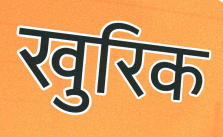
खुरिक